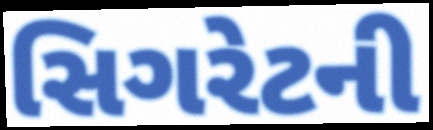
સિગરેટની